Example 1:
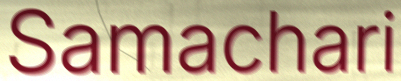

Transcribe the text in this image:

Samachari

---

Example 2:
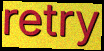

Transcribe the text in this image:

retry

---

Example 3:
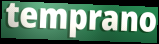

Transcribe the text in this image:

temprano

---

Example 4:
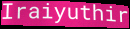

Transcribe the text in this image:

Iraiyuthir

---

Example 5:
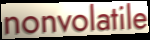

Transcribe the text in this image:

nonvolatile